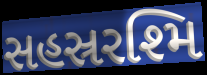
સહસ્રરશ્મિ